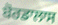
ਬੋਰਡਾਲਾਸ